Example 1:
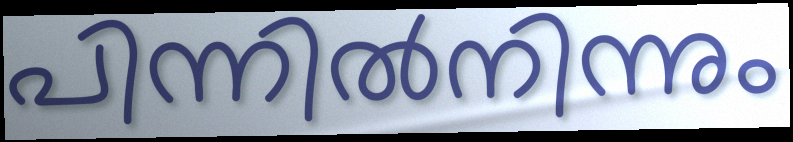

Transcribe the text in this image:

പിന്നിൽനിന്നും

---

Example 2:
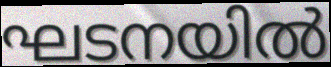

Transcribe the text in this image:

ഘടനയിൽ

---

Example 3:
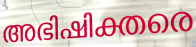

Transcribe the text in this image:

അഭിഷിക്തരെ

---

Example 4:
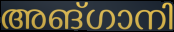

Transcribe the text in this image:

അങ്ഗാനി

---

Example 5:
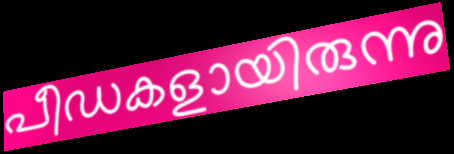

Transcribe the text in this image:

പീഡകളായിരുന്നു